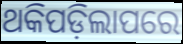
ଥକିପଡ଼ିଲାପରେ